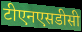
टीएनएसडीसी